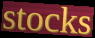
stocks